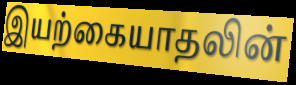
இயற்கையாதலின்